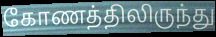
கோணத்திலிருந்து